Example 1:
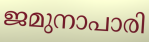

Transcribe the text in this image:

ജമുനാപാരി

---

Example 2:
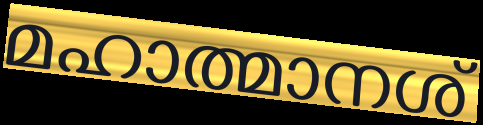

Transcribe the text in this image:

മഹാത്മാനശ്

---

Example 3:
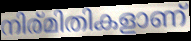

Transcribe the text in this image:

നിര്മിതികളാണ്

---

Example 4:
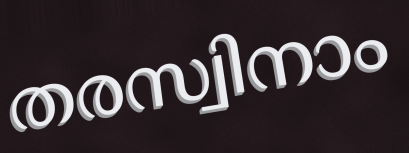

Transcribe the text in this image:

തരസ്വിനാം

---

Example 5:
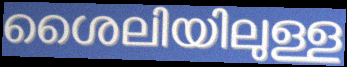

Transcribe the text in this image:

ശൈലിയിലുള്ള